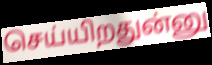
செய்யிறதுன்னு